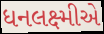
ધનલક્ષ્મીએ